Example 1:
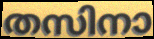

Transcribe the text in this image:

തസിനാ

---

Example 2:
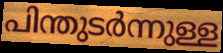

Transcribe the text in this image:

പിന്തുടർന്നുള്ള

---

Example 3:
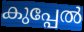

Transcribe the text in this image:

കുപ്പേൽ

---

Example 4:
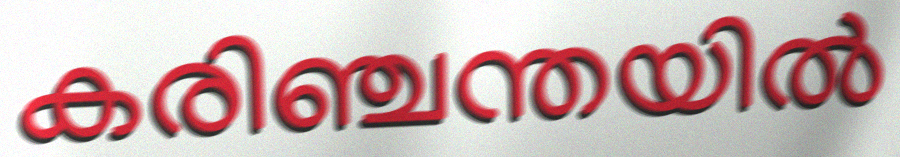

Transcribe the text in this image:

കരിഞ്ചന്തയിൽ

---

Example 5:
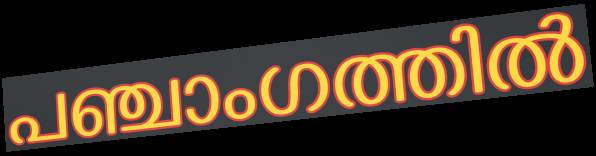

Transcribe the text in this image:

പഞ്ചാംഗത്തിൽ